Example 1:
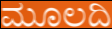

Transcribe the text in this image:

ಮೂಲದಿ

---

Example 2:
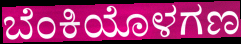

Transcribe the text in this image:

ಬೆಂಕಿಯೊಳಗಣ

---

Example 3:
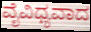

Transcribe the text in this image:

ವೈವಿಧ್ಯವಾದ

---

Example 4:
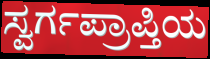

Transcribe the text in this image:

ಸ್ವರ್ಗಪ್ರಾಪ್ತಿಯ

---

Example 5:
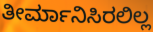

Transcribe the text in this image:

ತೀರ್ಮಾನಿಸಿರಲಿಲ್ಲ